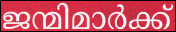
ജന്മിമാർക്ക്